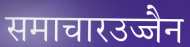
समाचारउज्जैन